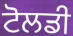
ਟੋਲਡੀ